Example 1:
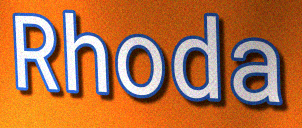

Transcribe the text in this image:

Rhoda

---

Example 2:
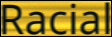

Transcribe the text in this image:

Racial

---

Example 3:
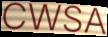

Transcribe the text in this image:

CWSA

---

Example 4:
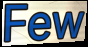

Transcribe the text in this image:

Few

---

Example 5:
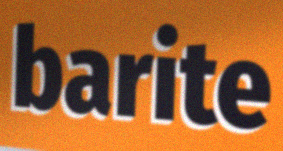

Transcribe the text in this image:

barite